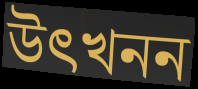
উৎখনন